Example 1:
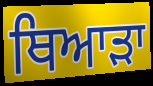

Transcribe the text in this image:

ਥਿਆੜਾ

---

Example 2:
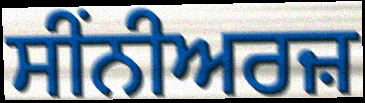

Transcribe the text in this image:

ਸੀਂਨੀਅਰਜ਼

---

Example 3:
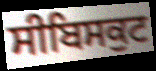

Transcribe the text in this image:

ਸੀਬਿਸਕੁਟ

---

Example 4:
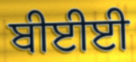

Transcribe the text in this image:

ਬੀਈਈ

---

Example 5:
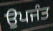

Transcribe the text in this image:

ਉਪਜੰਤ